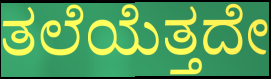
ತಲೆಯೆತ್ತದೇ